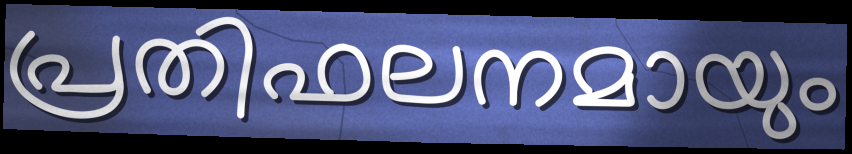
പ്രതിഫലനമായും